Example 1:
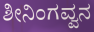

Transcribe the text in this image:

ಶೀನಿಂಗವ್ವನ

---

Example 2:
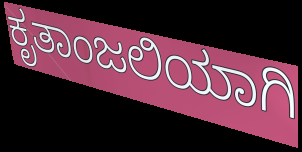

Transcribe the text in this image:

ಕೃತಾಂಜಲಿಯಾಗಿ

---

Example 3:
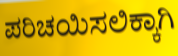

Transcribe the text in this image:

ಪರಿಚಯಿಸಲಿಕ್ಕಾಗಿ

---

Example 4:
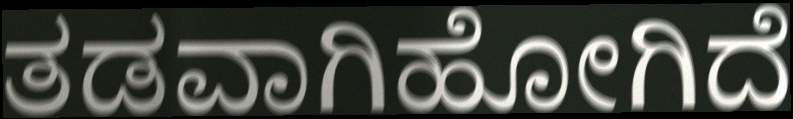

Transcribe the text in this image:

ತಡವಾಗಿಹೋಗಿದೆ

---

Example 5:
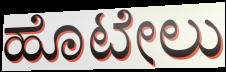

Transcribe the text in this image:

ಹೊಟೇಲು